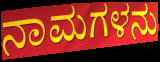
ನಾಮಗಳನು